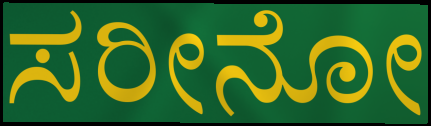
ಸರೀನೋ